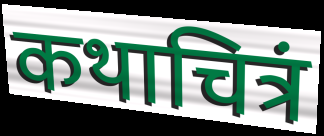
कथाचित्रं